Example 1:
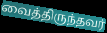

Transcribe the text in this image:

வைத்திருந்தவர்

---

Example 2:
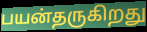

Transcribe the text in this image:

பயன்தருகிறது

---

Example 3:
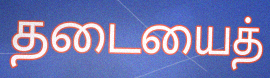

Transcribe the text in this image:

தடையைத்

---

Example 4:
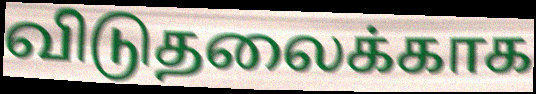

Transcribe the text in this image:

விடுதலைக்காக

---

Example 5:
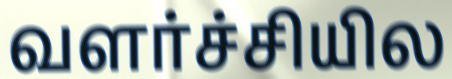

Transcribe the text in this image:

வளர்ச்சியில